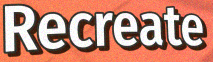
Recreate